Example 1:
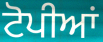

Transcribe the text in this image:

ਟੋਪੀਆਂ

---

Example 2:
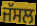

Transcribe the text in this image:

ਜੱਸਲ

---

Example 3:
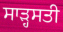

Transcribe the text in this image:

ਸਾੜ੍ਹਸਤੀ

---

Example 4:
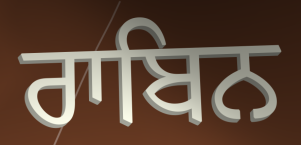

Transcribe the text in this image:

ਰਾਬਿਨ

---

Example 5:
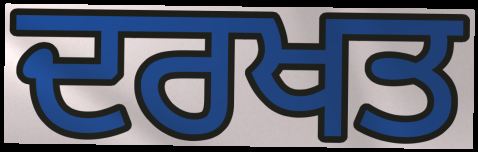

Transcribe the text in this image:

ਦਰਖਤ